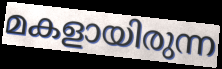
മകളായിരുന്ന